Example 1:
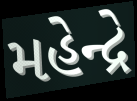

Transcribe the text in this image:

મહેન્દ્રે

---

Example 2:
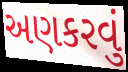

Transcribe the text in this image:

અણકરવું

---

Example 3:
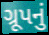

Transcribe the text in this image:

ગ્રૂપનું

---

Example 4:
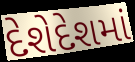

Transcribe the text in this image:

દેશેદેશમાં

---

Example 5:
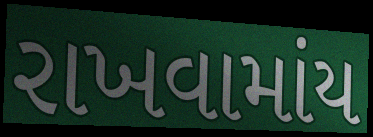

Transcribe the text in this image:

રાખવામાંય